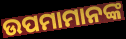
ଉପମାମାନଙ୍କ